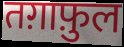
तग़ाफ़ुल